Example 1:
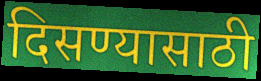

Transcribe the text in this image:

दिसण्यासाठी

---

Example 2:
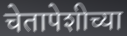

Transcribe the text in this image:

चेतापेशीच्या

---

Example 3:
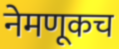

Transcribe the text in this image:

नेमणूकच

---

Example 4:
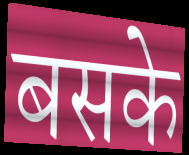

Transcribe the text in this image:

बसके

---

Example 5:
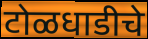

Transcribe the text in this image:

टोळधाडीचे